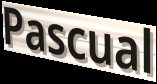
Pascual